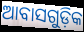
ଆବାସଗୁଡ଼ିକ